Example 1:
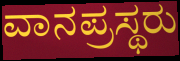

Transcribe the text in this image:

ವಾನಪ್ರಸ್ಥರು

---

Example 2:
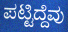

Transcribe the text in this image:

ಪಟ್ಟಿದ್ದೆವು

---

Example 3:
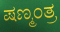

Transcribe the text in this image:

ಷಣ್ಮಂತ್ರ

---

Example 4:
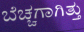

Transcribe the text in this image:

ಬೆಚ್ಚಗಾಗಿತ್ತು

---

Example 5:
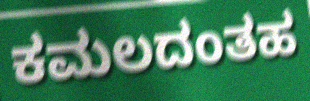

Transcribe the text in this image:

ಕಮಲದಂತಹ